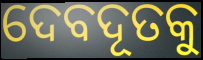
ଦେବଦୂତକୁ